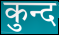
कुन्द